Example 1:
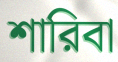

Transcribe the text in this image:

শারিবা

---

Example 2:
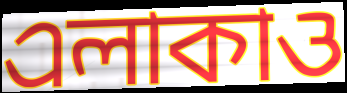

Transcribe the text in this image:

এলাকাও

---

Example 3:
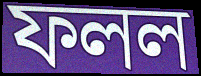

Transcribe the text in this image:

ফলল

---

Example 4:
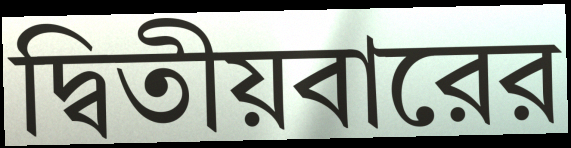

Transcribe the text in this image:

দ্বিতীয়বারের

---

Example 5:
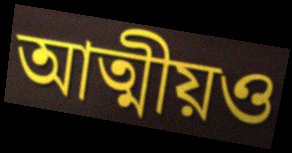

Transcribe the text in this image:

আত্মীয়ও